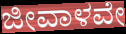
ಜೀವಾಳವೇ